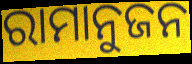
ରାମାନୁଜନ